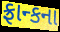
ફ્રાન્કના